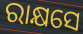
ରାକ୍ଷସେ